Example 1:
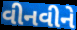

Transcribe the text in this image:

વીનવીને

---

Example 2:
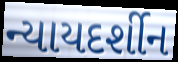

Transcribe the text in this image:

ન્યાયદર્શીન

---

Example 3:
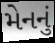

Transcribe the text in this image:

મેનનું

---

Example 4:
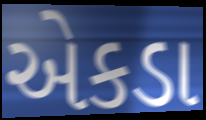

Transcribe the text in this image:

એકડા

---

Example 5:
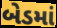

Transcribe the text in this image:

બેડમાં